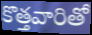
కొత్తవారితో